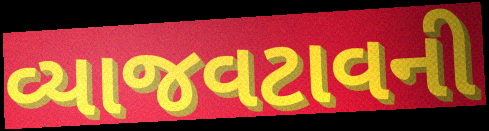
વ્યાજવટાવની